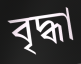
বৃদ্ধা